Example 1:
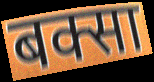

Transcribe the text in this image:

बक्सा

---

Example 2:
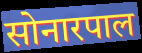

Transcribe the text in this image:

सोनारपाल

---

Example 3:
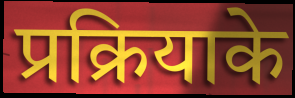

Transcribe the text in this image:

प्रक्रियाके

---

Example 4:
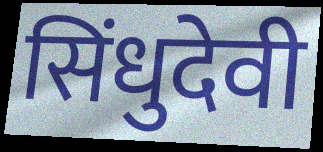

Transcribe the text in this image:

सिंधुदेवी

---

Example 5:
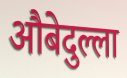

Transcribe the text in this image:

औबेदुल्ला